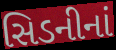
સિડનીનાં